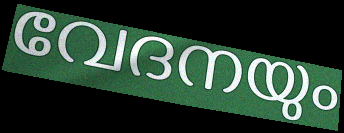
വേദനയും